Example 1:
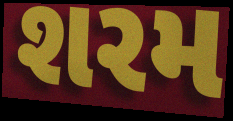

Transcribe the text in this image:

શરમ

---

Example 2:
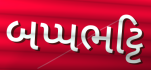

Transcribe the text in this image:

બપ્પભટ્ટિ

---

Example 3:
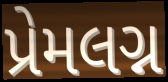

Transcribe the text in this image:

પ્રેમલગ્ન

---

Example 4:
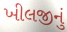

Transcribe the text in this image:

ખીલજીનું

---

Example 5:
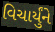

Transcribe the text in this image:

વિચાર્યુંને